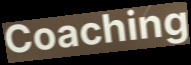
Coaching